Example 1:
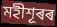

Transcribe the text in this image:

মহীশূৰৰ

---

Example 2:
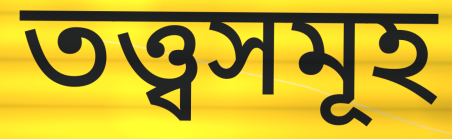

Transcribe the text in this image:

তত্ত্বসমূহ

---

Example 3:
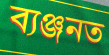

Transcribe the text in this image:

ব্যঞ্জনত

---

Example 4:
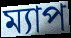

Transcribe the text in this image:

ম্যাপ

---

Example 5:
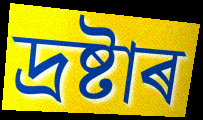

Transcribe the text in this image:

দ্ৰষ্টাৰ